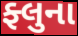
ફ્લુના